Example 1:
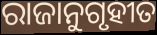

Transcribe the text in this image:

ରାଜାନୁଗୃହୀତ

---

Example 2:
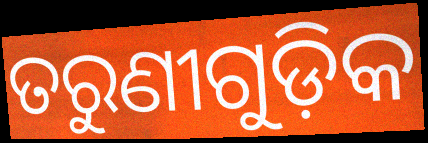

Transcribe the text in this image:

ତରୁଣୀଗୁଡ଼ିକ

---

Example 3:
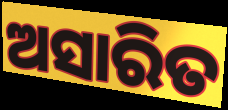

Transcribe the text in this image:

ଅସାରିତ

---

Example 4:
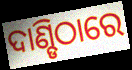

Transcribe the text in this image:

ଦାଣ୍ଡିଠାରେ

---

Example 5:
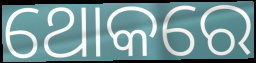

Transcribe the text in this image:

ଥୋକରେ